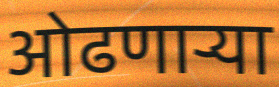
ओढणार्‍या